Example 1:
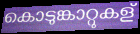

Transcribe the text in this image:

കൊടുങ്കാറ്റുകള്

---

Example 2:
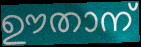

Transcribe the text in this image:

ഊതാന്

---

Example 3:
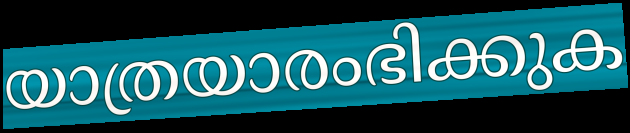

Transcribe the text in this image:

യാത്രയാരംഭിക്കുക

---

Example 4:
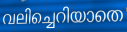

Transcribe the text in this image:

വലിച്ചെറിയാതെ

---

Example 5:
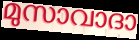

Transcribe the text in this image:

മുസാവാദാ